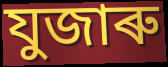
যুজাৰু